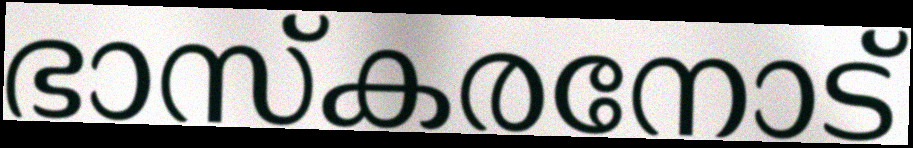
ഭാസ്കരനോട്